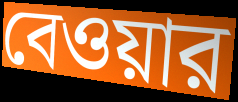
বেওয়ার